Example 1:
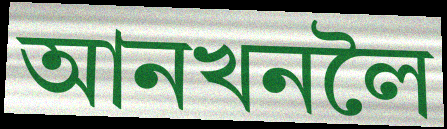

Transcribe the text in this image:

আনখনলৈ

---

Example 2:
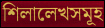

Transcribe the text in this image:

শিলালেখসমূহ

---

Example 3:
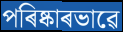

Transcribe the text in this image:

পৰিষ্কাৰভাৱে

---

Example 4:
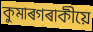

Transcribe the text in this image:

কুমাৰগৰাকীয়ে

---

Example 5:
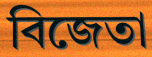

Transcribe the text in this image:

বিজেতা